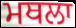
ਮਥਲਾ